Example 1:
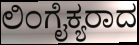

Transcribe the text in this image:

ಲಿಂಗೈಕ್ಯರಾದ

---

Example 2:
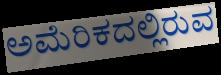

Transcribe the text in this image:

ಅಮೆರಿಕದಲ್ಲಿರುವ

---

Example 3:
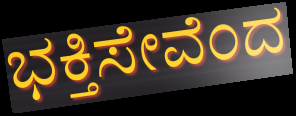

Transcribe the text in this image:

ಭಕ್ತಿಸೇವೆಂದ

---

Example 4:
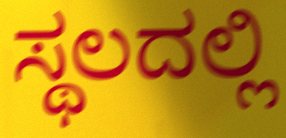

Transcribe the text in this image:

ಸ್ಥಲದಲ್ಲಿ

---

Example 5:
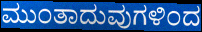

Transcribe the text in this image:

ಮುಂತಾದುವುಗಳಿಂದ